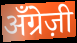
अँग्रेज़ी